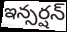
ఇన్సర్షన్